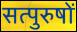
सत्पुरुषों